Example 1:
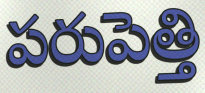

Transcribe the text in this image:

పరుపెత్తి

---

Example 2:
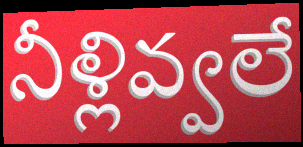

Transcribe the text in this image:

నీళ్లివ్వలే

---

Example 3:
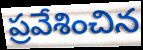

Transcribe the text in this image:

ప్రవేశించిన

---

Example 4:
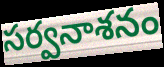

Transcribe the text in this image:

సర్వనాశనం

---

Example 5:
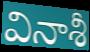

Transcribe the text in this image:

వినాశీ